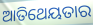
ଆତିଥେୟତାର